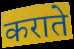
कराते